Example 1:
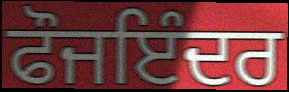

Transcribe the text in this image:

ਫੌਜਇੰਦਰ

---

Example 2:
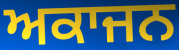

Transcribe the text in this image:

ਅਕਾਜਨ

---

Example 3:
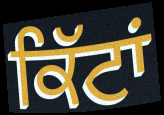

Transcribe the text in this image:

ਕਿੱਟਾਂ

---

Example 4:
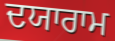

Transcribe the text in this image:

ਦਯਾਰਾਮ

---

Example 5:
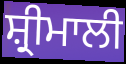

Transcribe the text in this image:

ਸ਼੍ਰੀਮਾਲੀ